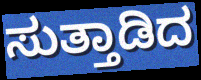
ಸುತ್ತಾಡಿದ